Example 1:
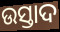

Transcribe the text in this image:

ଉସ୍ତାଦ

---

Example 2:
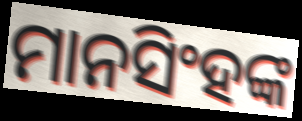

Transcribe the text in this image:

ମାନସିଂହଙ୍କ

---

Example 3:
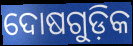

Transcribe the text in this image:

ଦୋଷଗୁଡ଼ିକ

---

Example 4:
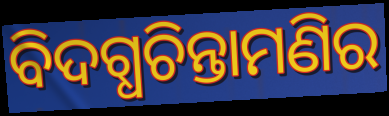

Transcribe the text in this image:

ବିଦଗ୍ଧଚିନ୍ତାମଣିର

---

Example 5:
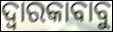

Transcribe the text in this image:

ଦ୍ୱାରକାବାବୁ